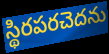
స్థిరపరచెదను